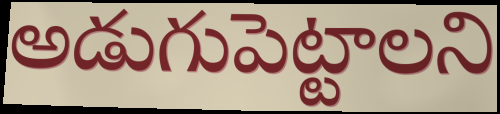
అడుగుపెట్టాలని